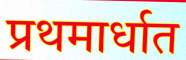
प्रथमार्धात